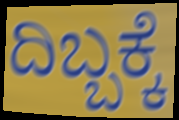
ದಿಬ್ಬಕ್ಕೆ